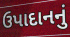
ઉપાદાનનું